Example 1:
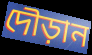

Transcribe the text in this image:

দৌড়ান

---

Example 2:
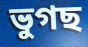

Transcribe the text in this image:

ভুগছ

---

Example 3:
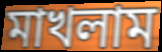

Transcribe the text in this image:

মাখলাম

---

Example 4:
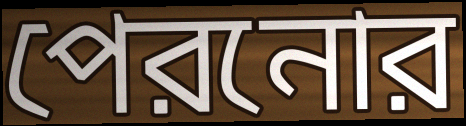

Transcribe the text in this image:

পেরনোর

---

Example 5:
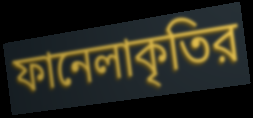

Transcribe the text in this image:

ফানেলাকৃতির